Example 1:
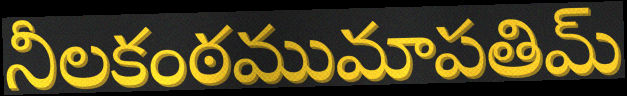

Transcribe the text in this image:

నీలకంఠముమాపతిమ్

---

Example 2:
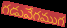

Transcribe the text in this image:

గడువేగముగ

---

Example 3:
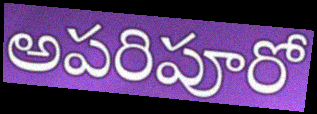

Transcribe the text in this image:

అపరిపూరో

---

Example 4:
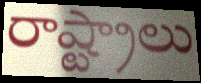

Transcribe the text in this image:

రాష్ట్రాలు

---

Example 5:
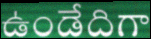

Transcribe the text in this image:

ఉండేదిగా